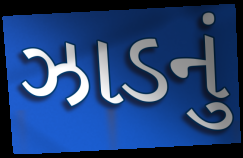
ઝાડનું